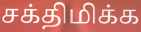
சக்திமிக்க